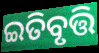
ଇତିବୃତ୍ତି